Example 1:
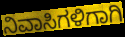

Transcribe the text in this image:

ನಿವಾಸಿಗಳಿಗಾಗಿ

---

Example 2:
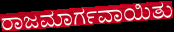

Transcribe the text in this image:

ರಾಜಮಾರ್ಗವಾಯಿತು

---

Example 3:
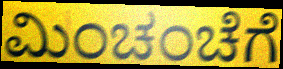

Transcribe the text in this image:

ಮಿಂಚಂಚೆಗೆ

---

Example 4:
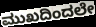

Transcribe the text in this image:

ಮುಖದಿಂದಲೇ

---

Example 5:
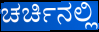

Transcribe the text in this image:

ಚರ್ಚಿನಲ್ಲಿ